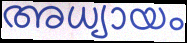
അധ്യായം